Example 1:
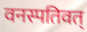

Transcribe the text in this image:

वनस्पतिवत्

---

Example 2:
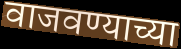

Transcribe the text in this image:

वाजवण्याच्या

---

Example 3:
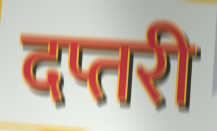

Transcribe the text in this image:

दप्तरी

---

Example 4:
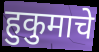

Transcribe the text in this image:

हुकुमाचे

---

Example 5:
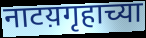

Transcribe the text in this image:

नाटय़गृहाच्या